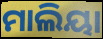
ମାଲିୟା